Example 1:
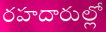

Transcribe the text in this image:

రహదారుల్లో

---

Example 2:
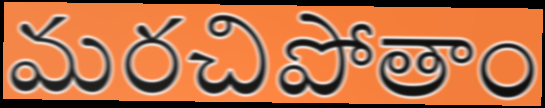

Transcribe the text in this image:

మరచిపోతాం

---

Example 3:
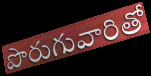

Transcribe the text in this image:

పొరుగువారితో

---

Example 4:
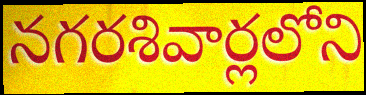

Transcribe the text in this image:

నగరశివార్లలోని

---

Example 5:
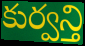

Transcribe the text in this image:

కుర్వన్తి